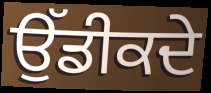
ਉੱਡੀਕਦੇ